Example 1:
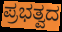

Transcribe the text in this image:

ಪ್ರಭತ್ವದ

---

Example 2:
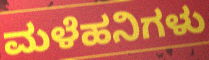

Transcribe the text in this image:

ಮಳೆಹನಿಗಳು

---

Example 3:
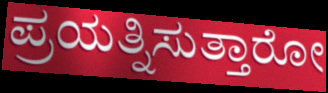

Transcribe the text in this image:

ಪ್ರಯತ್ನಿಸುತ್ತಾರೋ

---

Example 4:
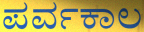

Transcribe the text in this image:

ಪರ್ವಕಾಲ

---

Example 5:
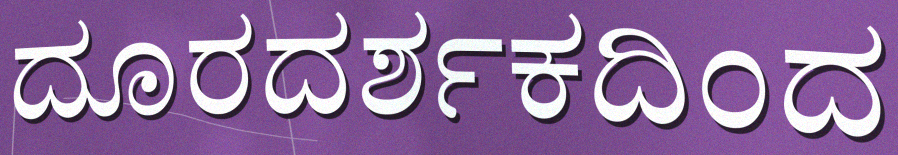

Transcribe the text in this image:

ದೂರದರ್ಶಕದಿಂದ